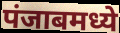
पंजाबमध्ये